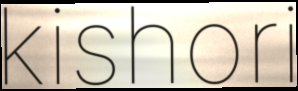
kishori